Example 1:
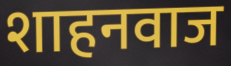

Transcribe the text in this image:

शाहनवाज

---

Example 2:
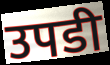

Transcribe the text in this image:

उपडी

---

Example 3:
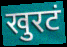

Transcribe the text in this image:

खुरटं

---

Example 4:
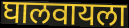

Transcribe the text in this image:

घालवायला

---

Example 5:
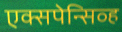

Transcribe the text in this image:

एक्सपेन्सिव्ह